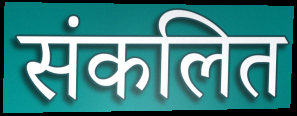
संकलित